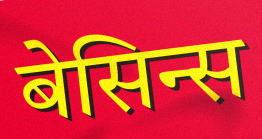
बेसिन्स